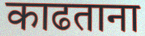
काढताना